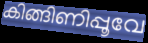
കിങ്ങിണിപ്പൂവേ